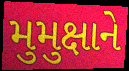
મુમુક્ષાને